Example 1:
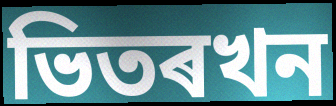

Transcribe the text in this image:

ভিতৰখন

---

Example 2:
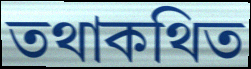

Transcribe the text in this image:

তথাকথিত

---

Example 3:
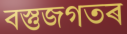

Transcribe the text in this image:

বস্তুজগতৰ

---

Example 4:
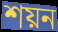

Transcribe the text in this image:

শয়ন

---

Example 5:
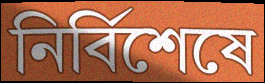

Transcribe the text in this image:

নিৰ্বিশেষে